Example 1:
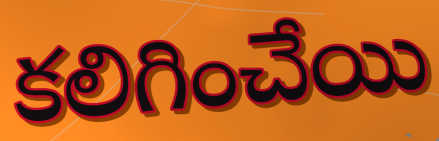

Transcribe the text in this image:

కలిగించేయి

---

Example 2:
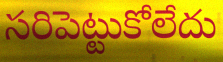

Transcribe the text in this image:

సరిపెట్టుకోలేదు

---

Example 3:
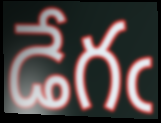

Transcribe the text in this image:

డేగఁ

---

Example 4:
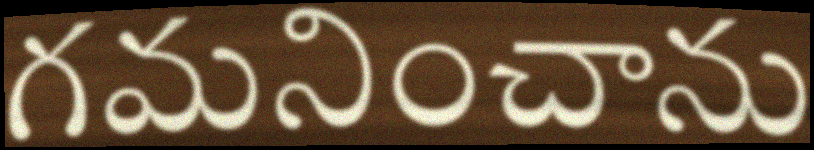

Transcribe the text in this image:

గమనించాను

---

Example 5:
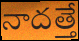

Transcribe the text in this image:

నాదత్తే